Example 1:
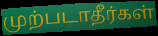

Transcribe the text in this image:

முற்படாதீர்கள்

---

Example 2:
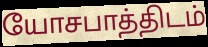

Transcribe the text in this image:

யோசபாத்திடம்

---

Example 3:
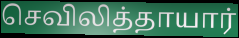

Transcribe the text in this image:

செவிலித்தாயார்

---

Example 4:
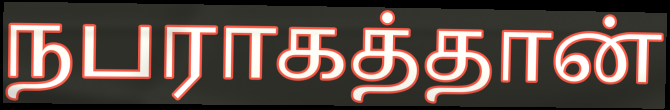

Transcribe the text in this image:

நபராகத்தான்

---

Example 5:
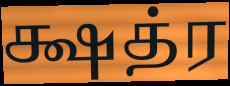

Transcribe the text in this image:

க்ஷத்ர